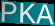
PKA